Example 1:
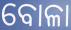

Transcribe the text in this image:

ବୋଳା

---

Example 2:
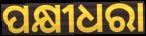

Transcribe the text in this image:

ପକ୍ଷୀଧରା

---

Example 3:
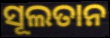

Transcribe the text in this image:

ସୂଲତାନ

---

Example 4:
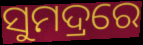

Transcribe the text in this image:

ସୁମଦ୍ରରେ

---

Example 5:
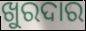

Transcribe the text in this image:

ଖୁରଦାର